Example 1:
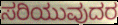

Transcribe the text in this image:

ಸರಿಯುವುದರ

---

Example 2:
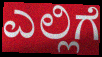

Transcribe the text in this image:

ಎಲ್ಲಿಗೆ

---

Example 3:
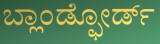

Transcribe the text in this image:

ಬ್ಲಾಂಡ್ಫೋರ್ಡ್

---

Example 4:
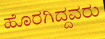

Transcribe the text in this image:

ಹೊರಗಿದ್ದವರು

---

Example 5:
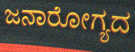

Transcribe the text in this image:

ಜನಾರೋಗ್ಯದ